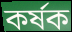
কর্ষক